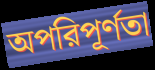
অপরিপূর্ণতা